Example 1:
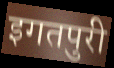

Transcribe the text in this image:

इगतपुरी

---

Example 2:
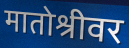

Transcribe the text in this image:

मातोश्रीवर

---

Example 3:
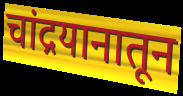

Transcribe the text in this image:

चांद्रयानातून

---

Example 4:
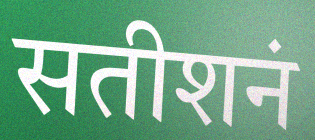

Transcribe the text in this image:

सतीशनं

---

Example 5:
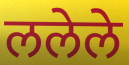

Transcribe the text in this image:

ललेले